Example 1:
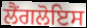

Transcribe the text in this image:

ਲੈਂਗਲੋਇਸ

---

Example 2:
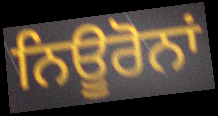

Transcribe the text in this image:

ਨਿਊਰੋਨਾਂ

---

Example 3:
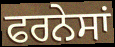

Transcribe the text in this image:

ਫਰਨੇਸਾਂ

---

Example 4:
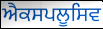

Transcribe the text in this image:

ਐਕਸਪਲੂਸਿਵ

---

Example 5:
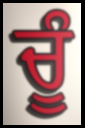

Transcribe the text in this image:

ਚੂੰ